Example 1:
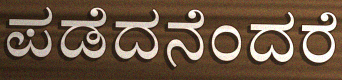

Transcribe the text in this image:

ಪಡೆದನೆಂದರೆ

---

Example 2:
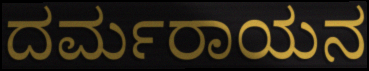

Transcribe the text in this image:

ದರ್ಮರಾಯನ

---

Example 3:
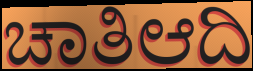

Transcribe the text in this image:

ಚಾತಿಆದಿ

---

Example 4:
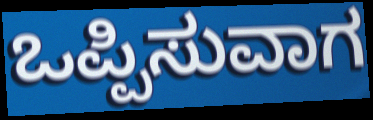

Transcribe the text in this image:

ಒಪ್ಪಿಸುವಾಗ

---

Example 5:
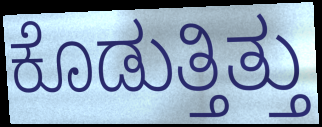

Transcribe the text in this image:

ಕೊಡುತ್ತಿತ್ತು